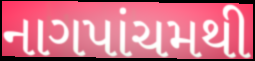
નાગપાંચમથી